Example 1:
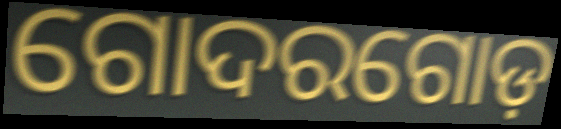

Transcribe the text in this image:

ଗୋଦରଗୋଡ଼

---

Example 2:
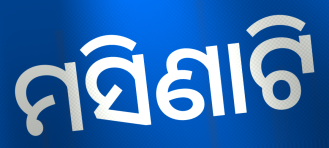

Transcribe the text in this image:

ମସିଣାଟି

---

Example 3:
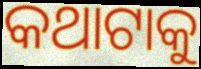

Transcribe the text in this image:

କଥାଟାକୁ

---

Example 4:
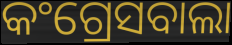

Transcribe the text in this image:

କଂଗ୍ରେସବାଲା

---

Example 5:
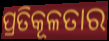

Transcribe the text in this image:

ପ୍ରତିକୂଳତାର